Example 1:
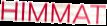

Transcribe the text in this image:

HIMMAT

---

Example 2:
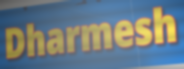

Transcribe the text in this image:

Dharmesh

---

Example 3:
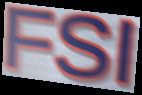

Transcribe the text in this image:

FSI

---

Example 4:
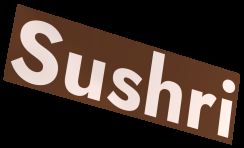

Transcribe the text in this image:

Sushri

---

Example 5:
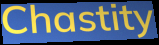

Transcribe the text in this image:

Chastity